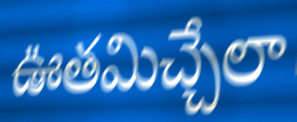
ఊతమిచ్చేలా